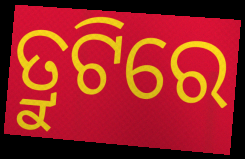
ତ୍ରୁଟିରେ